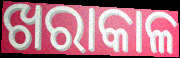
ଖରାକାଳ